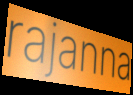
rajanna